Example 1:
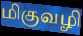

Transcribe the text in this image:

மிகுவழி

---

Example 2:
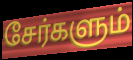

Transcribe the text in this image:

சேர்களும்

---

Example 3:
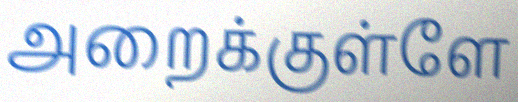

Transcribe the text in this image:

அறைக்குள்ளே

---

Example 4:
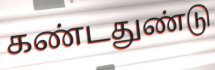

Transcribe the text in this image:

கண்டதுண்டு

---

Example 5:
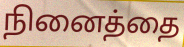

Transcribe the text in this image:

நினைத்தை